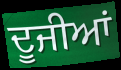
ਦੂਜੀਆਂ